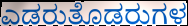
ಎಡರುತೊಡರುಗಳ